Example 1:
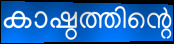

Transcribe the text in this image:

കാഷ്ഠത്തിന്റെ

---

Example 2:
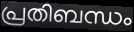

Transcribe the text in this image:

പ്രതിബന്ധം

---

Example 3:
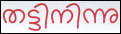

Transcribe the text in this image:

തട്ടിനിന്നു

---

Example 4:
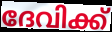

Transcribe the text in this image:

ദേവിക്ക്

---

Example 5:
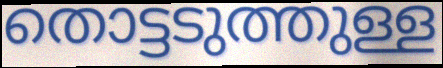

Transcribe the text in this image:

തൊട്ടടുത്തുള്ള